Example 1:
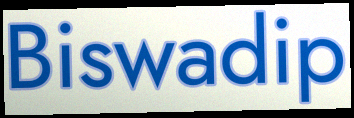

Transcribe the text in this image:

Biswadip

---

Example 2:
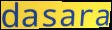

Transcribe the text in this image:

dasara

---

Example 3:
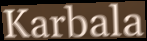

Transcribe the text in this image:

Karbala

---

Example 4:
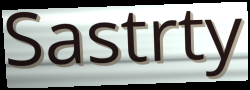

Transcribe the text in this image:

Sastrty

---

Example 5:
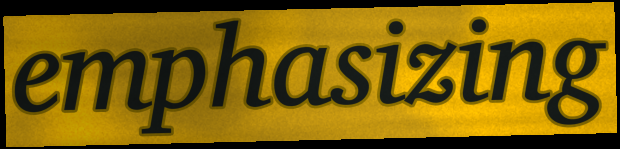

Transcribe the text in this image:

emphasizing